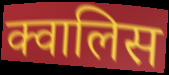
क्वालिस